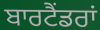
ਬਾਰਟੈਂਡਰਾਂ